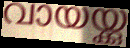
വായയ്ക്കു